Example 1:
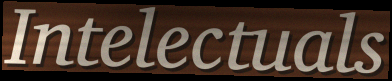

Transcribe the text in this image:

Intelectuals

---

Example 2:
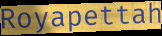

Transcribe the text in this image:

Royapettah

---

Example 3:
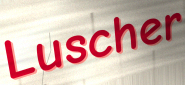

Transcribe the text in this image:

Luscher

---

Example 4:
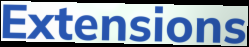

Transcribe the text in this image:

Extensions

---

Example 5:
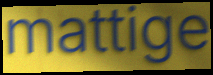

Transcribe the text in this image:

mattige